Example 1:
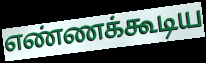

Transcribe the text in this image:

எண்ணக்கூடிய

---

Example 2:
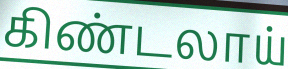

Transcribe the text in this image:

கிண்டலாய்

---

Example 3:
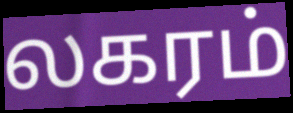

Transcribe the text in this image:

லகரம்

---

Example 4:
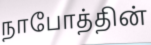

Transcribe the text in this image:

நாபோத்தின்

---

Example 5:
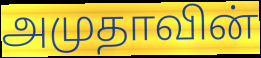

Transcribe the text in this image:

அமுதாவின்